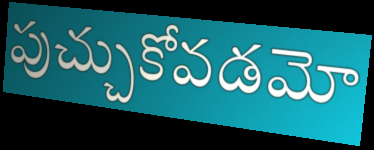
పుచ్చుకోవడమో